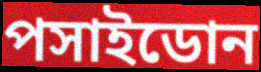
পসাইডোন